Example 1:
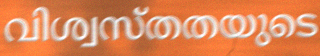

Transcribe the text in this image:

വിശ്വസ്തതയുടെ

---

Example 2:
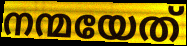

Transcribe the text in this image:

നന്മയേത്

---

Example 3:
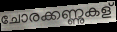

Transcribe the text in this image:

ചോരക്കണ്ണുകള്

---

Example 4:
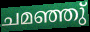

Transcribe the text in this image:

ചമഞ്ഞു്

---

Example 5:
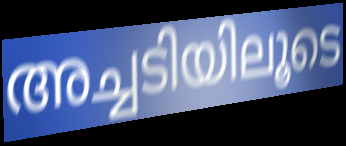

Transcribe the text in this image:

അച്ചടിയിലൂടെ